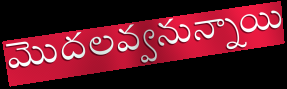
మొదలవ్వనున్నాయి